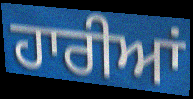
ਹਾਰੀਆਂ